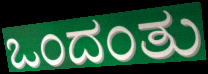
ಒಂದಂತು